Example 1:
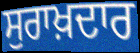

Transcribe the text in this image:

ਸੁਰਾਖ਼ਦਾਰ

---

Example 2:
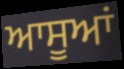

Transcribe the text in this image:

ਆਸੂਆਂ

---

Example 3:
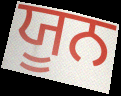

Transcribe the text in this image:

ਯੂਨ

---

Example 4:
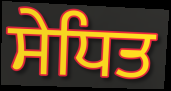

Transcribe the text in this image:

ਸੇਧਿਤ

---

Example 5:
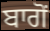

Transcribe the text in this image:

ਬਾਗੋਂ